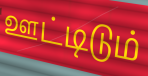
ஊட்டிடும்